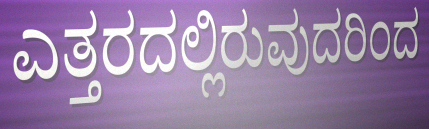
ಎತ್ತರದಲ್ಲಿರುವುದರಿಂದ